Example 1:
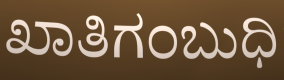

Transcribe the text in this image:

ಖಾತಿಗಂಬುಧಿ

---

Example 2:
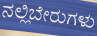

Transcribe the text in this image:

ನಲ್ಲಿಬೇರುಗಳು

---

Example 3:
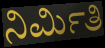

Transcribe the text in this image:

ನಿರ್ಮಿತಿ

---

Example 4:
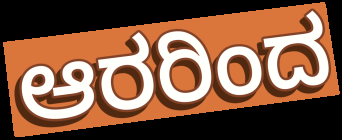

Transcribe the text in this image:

ಆರರಿಂದ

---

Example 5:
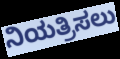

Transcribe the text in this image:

ನಿಯತ್ರಿಸಲು